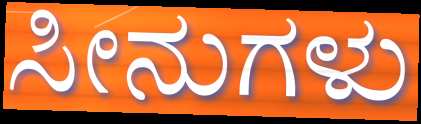
ಸೀನುಗಳು